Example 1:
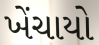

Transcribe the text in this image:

ખેંચાયો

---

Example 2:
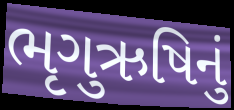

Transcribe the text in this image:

ભૃગુઋષિનું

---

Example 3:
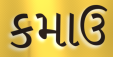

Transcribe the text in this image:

કમાઉ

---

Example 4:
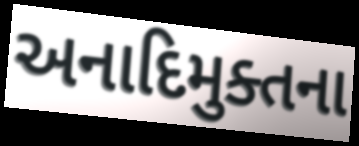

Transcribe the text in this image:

અનાદિમુક્તના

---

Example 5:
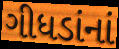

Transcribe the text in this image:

ગીધડાંનાં